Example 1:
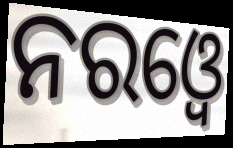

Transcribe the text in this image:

ନରଓ୍ୱେ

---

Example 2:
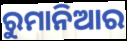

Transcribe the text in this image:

ରୁମାନିଆର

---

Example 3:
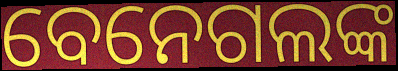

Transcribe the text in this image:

ବେନେଗଲଙ୍କ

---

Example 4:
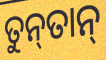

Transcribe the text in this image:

ତୁନ୍‍ତାନ୍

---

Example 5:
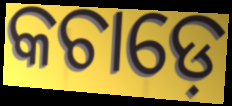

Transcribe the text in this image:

କଚାଡ଼େ